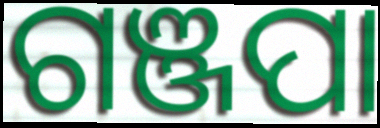
ଗଞ୍ଜପା